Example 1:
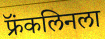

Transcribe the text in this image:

फ्रॅंकलिनला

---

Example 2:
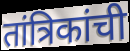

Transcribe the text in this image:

तांत्रिकांची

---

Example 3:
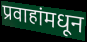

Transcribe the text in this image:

प्रवाहांमधून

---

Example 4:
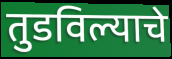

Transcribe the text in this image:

तुडविल्याचे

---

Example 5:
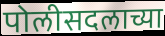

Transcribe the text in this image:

पोलीसदलाच्या